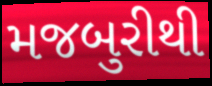
મજબુરીથી